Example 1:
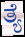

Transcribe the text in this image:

ತ್ಯೆ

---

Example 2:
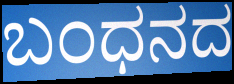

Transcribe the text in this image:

ಬಂಧನದ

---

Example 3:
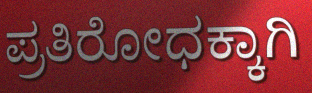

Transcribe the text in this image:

ಪ್ರತಿರೋಧಕ್ಕಾಗಿ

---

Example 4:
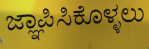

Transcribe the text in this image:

ಜ್ಞಾಪಿಸಿಕೊಳ್ಳಲು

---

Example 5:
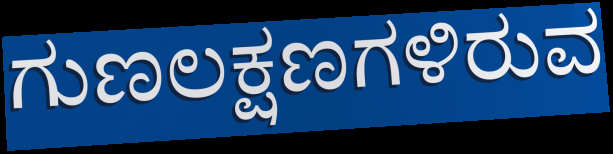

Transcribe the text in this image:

ಗುಣಲಕ್ಷಣಗಳಿರುವ